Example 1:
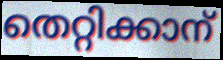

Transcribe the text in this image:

തെറ്റിക്കാന്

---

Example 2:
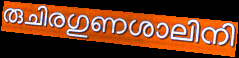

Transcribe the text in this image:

രുചിരഗുണശാലിനി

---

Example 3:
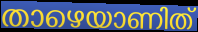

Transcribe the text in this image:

താഴെയാണിത്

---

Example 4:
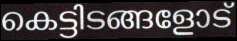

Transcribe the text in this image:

കെട്ടിടങ്ങളോട്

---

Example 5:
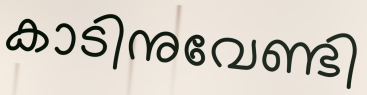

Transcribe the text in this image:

കാടിനുവേണ്ടി